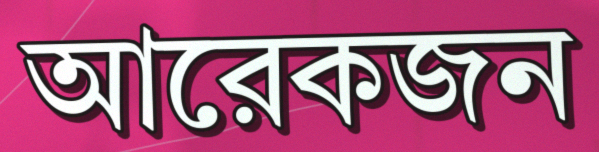
আরেকজন